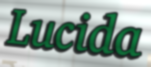
Lucida